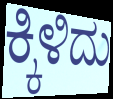
ಕ್ಕಿಳಿದು